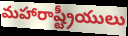
మహారాష్ట్రీయులు